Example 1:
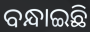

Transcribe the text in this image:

ବନ୍ଧାଇଛି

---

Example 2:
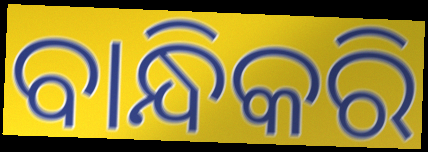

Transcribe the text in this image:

ବାନ୍ଧିକରି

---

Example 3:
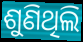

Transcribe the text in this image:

ଶୁଣିଥିଲି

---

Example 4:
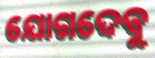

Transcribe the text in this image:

ଯୋଗଦେବୁ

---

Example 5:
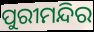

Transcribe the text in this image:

ପୁରୀମନ୍ଦିର